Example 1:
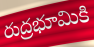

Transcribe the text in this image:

రుద్రభూమికి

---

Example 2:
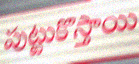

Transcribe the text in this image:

పుట్టుకొస్తాయి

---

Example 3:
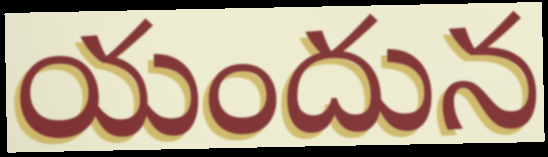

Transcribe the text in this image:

యందున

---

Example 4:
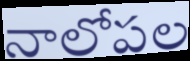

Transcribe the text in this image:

నాలోపల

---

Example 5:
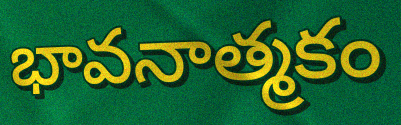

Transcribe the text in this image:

భావనాత్మకం